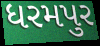
ધરમપુર